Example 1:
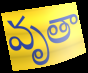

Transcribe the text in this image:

వృతా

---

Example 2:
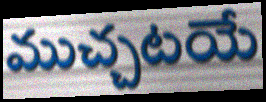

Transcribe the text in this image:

ముచ్చటయే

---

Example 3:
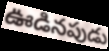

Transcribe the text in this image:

ఊడినపుడు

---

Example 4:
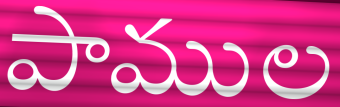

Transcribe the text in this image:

పాముల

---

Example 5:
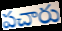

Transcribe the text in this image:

పచారు